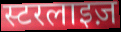
स्टरलाइज़